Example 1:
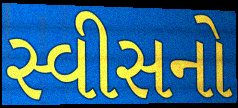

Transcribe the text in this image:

સ્વીસનો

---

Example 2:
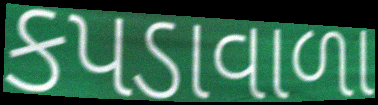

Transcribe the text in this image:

કપડાવાળા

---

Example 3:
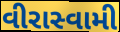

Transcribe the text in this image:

વીરાસ્વામી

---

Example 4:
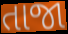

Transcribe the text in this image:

તાજા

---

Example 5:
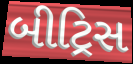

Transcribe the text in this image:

બીટ્રિસ